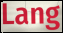
Lang